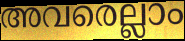
അവരെല്ലാം